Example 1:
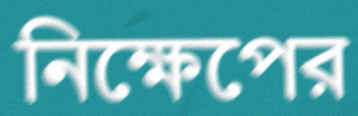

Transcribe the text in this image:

নিক্ষেপের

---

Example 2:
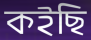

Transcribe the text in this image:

কইছি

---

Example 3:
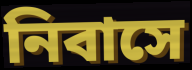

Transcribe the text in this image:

নিবাসে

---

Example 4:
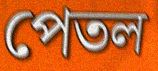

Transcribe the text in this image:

পেতল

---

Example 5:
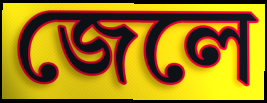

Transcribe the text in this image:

জেলে